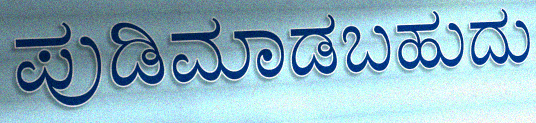
ಪುಡಿಮಾಡಬಹುದು